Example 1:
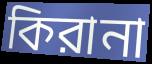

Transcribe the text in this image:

কিরানা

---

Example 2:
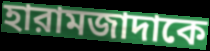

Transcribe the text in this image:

হারামজাদাকে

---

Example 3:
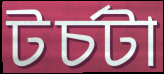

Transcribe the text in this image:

টর্চটা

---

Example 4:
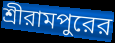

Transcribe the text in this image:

শ্রীরামপুরের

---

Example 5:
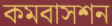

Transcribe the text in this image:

কমবাসশন